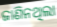
ଜାଣିନଥିଲା